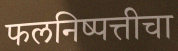
फलनिष्पत्तीचा